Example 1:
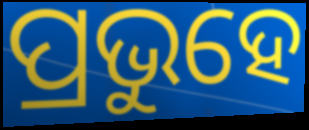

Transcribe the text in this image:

ପ୍ରଭୁହେ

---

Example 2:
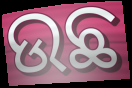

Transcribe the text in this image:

ଉଛ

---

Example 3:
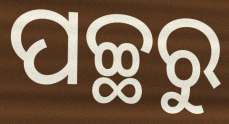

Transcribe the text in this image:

ପଚ୍ଛରୁ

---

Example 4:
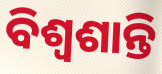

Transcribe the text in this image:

ବିଶ୍ୱଶାନ୍ତି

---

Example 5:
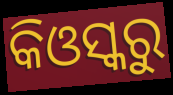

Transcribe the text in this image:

କିଓସ୍କରୁ